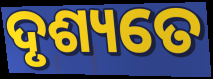
ଦୃଶ୍ୟତେ